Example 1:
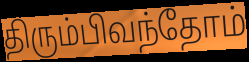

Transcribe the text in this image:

திரும்பிவந்தோம்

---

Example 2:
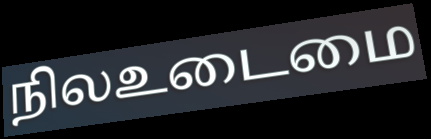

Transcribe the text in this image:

நிலஉடைமை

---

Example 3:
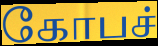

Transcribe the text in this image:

கோபச்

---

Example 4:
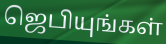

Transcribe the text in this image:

ஜெபியுங்கள்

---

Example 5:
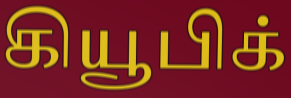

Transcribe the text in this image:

கியூபிக்